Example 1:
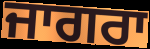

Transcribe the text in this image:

ਜਾਗਰਾ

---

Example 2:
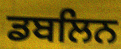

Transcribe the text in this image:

ਡਬਲਿਨ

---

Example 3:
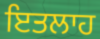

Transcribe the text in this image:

ਇਤਲਾਹ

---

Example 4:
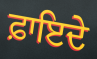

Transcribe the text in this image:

ਫ਼ਾਇਦੇ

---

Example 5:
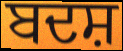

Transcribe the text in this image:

ਬਦਸ਼